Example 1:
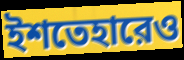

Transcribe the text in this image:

ইশতেহারেও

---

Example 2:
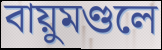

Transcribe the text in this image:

বায়ুমণ্ডলে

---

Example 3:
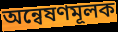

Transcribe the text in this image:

অন্বেষণমূলক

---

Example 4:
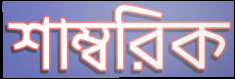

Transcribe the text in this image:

শাম্বরিক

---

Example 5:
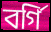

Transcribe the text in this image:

বর্গি